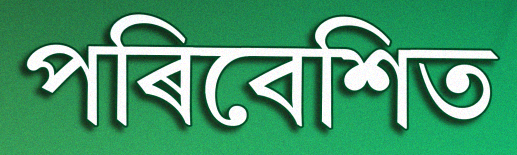
পৰিবেশিত